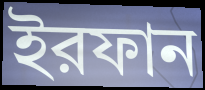
ইরফান